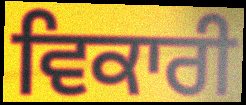
ਵਿਕਾਰੀ